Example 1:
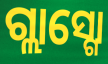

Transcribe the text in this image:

ଗ୍ଲାସ୍ଗୋ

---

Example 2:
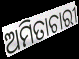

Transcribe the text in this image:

ଅମିତାଚାରୀ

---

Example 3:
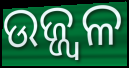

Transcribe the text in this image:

ଉଜ୍ଜ୍ବଳ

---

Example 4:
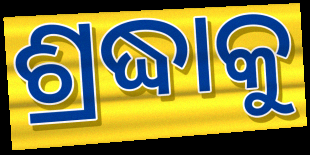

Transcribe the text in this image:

ଶ୍ରଦ୍ଧାକୁ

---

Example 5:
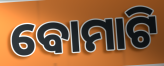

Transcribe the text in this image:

ବୋମାଟି